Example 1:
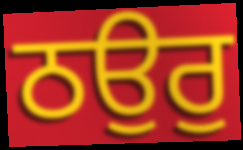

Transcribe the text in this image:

ਠਉਰੁ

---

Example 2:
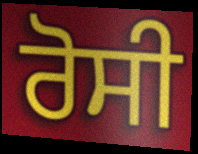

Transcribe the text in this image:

ਰੋਸੀ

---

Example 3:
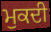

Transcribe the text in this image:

ਮੁਕਦੀ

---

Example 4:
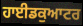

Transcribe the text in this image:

ਹਾਈਡਕੁਆਟਰ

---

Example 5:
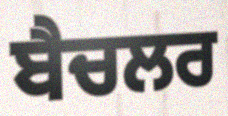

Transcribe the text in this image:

ਬੈਚਲਰ